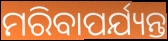
ମରିବାପର୍ଯ୍ୟନ୍ତ